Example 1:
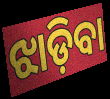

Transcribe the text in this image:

ଝାଡ଼ିବା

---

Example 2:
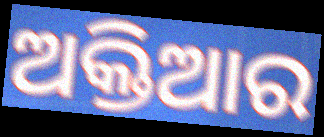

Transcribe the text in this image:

ଅକ୍ତିଆର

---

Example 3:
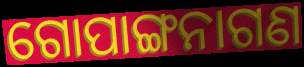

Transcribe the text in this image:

ଗୋପାଙ୍ଗନାଗଣ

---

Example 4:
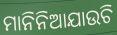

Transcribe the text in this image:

ମାନିନିଆଯାଉଚି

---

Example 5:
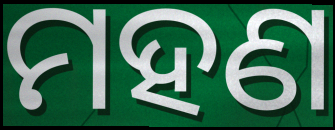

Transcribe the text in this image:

ମହଣ